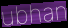
ubhan